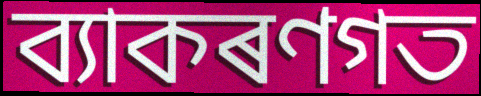
ব্যাকৰণগত